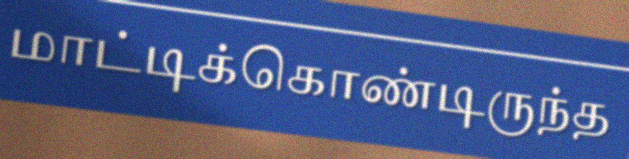
மாட்டிக்கொண்டிருந்த